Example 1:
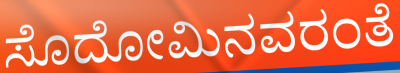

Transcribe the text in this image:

ಸೊದೋಮಿನವರಂತೆ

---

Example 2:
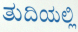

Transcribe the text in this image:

ತುದಿಯಲ್ಲಿ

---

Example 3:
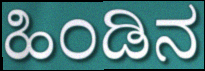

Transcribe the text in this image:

ಹಿಂಡಿನ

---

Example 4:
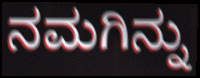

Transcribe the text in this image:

ನಮಗಿನ್ನು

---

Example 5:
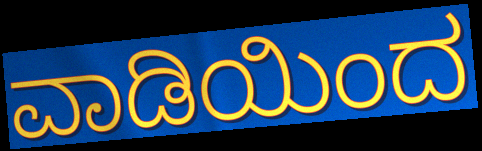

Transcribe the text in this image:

ವಾಡಿಯಿಂದ